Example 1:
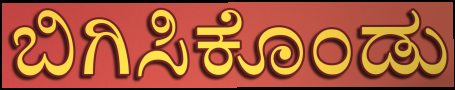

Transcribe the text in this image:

ಬಿಗಿಸಿಕೊಂಡು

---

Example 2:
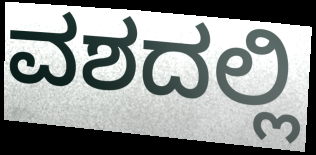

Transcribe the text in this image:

ವಶದಲ್ಲಿ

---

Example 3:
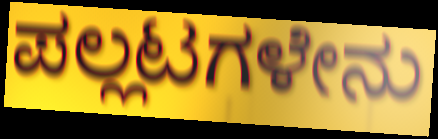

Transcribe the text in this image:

ಪಲ್ಲಟಗಳೇನು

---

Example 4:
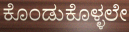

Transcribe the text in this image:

ಕೊಂಡುಕೊಳ್ಳಲೇ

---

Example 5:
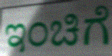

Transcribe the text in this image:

ಇಂಚಿಗೆ